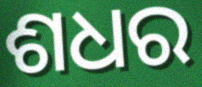
ଶଧର